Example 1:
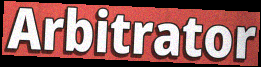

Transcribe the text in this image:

Arbitrator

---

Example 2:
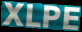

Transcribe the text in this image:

XLPE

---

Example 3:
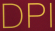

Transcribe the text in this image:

DPI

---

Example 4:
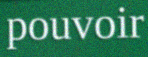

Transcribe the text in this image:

pouvoir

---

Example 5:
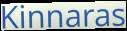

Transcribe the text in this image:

Kinnaras